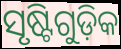
ସୃଷ୍ଟିଗୁଡ଼ିକ